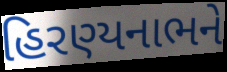
હિરણ્યનાભને